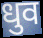
धुव